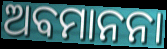
ଅବମାନନା